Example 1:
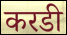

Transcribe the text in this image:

करडी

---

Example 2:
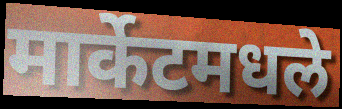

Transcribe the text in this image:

मार्केटमधले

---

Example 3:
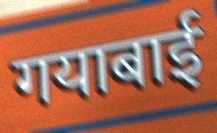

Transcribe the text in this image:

गयाबाई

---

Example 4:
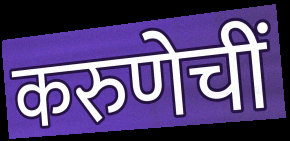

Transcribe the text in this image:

करुणेचीं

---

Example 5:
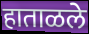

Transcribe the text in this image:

हाताळले